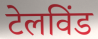
टेलविंड